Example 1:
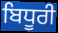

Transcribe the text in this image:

ਬਿਧੂਰੀ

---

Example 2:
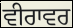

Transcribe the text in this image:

ਵੀਰਾਵਰ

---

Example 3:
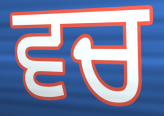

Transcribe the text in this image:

ਵਚ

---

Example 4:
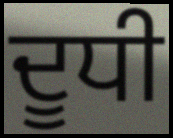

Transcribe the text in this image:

ਦੂਧੀ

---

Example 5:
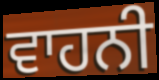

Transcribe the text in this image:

ਵਾਹਨੀ